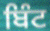
ਬਿੰਟ